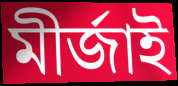
মীর্জাই